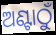
ଅଣ୍ଟାଠୁଁ